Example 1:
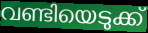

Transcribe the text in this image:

വണ്ടിയെടുക്ക്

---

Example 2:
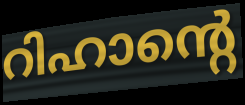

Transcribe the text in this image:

റിഹാന്റെ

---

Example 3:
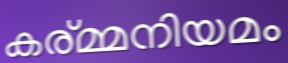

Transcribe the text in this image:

കര്മ്മനിയമം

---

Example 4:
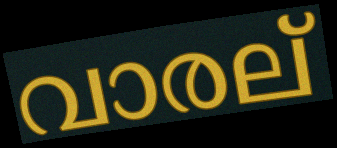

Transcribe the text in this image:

വാരല്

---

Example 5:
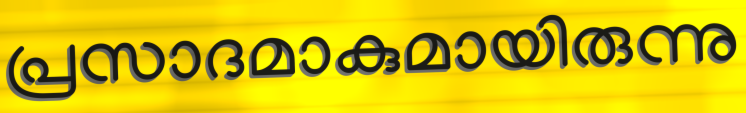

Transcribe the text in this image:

പ്രസാദമാകുമായിരുന്നു